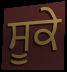
ਸੂਕੇ